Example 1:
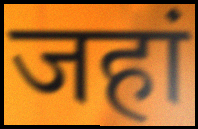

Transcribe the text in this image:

जहां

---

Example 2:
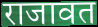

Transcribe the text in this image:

राजावत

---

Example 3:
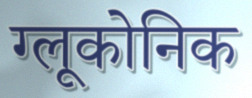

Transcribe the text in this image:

ग्लूकोनिक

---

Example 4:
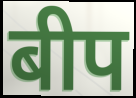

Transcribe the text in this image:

बीप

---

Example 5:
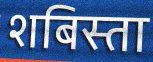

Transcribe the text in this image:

शबिस्ता